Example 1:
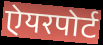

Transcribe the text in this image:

ऐयरपोर्ट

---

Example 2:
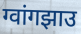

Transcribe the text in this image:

ग्वांगझाउ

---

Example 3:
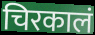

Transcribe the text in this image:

चिरकालं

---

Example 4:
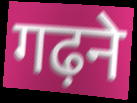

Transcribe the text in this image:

गढ़ने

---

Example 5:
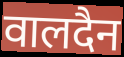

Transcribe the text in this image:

वालदैन